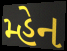
મ્હેન